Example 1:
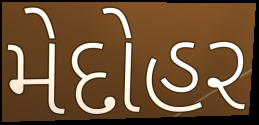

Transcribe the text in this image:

મેદોહર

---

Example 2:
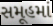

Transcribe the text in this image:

સમૂહમાં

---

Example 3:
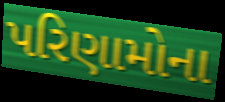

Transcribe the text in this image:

પરિણામોના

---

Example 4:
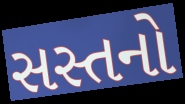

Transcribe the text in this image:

સસ્તનો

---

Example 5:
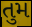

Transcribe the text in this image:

તુમ